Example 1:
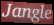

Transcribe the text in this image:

Jangle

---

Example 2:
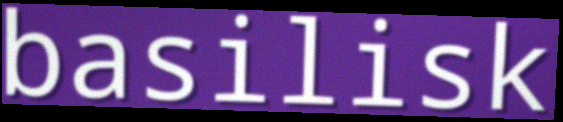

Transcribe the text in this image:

basilisk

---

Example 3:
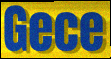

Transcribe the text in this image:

Gece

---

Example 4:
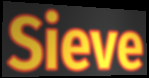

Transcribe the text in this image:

Sieve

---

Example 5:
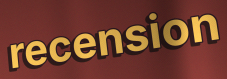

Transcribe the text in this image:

recension